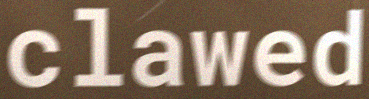
clawed